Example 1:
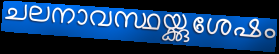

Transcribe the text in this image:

ചലനാവസ്ഥയ്ക്കുശേഷം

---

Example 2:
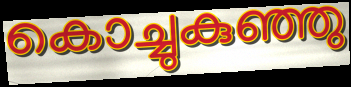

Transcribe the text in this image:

കൊച്ചുകുഞ്ഞു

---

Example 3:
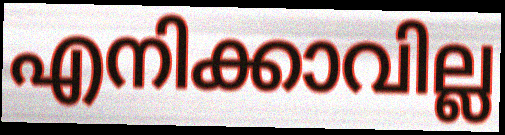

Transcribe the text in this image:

എനിക്കാവില്ല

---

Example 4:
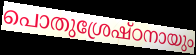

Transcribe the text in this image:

പൊതുശ്രേഷ്ഠനായും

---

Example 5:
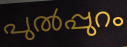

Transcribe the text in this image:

പുൽപ്പുറം